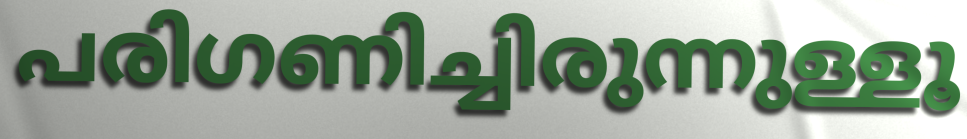
പരിഗണിച്ചിരുന്നുള്ളൂ